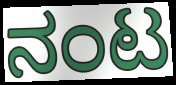
ನಂಟ